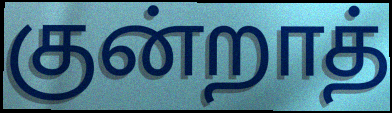
குன்றாத்